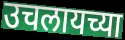
उचलायच्या